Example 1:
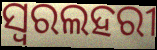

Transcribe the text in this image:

ସ୍ୱରଲହରୀ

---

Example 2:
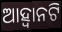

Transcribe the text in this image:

ଆହ୍ଵାନଟି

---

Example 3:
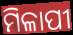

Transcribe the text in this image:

ମିଳାପୀ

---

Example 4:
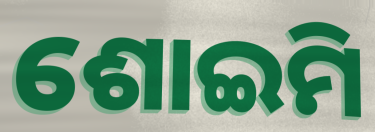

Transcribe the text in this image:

ଶୋଇମି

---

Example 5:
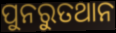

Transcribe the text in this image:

ପୁନରୁତଥାନ